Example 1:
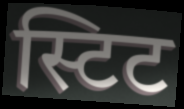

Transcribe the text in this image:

स्टिट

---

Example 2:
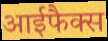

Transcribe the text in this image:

आईफैक्स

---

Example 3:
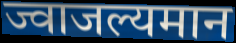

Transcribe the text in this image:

ज्वाजल्यमान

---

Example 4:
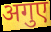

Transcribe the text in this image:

अगुए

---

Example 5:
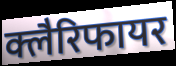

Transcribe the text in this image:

क्लैरिफायर